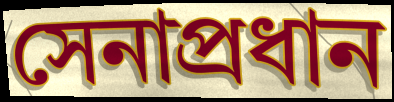
সেনাপ্রধান